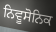
ਨਿਵੂਸੋਨਿਕ